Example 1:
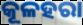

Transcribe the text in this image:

କୂଳହରା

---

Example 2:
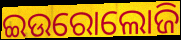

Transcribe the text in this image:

ଇଉରୋଲୋଜି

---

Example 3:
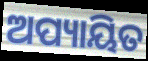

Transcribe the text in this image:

ଅପ୍ୟାୟିତ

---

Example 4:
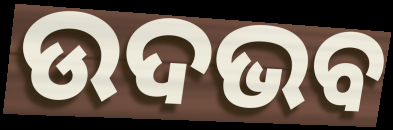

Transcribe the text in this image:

ଉଦଭବ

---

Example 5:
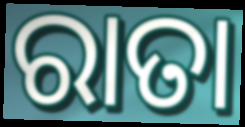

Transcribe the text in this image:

ରାତା